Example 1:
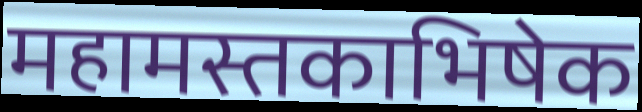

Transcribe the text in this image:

महामस्तकाभिषेक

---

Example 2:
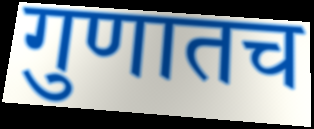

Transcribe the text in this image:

गुणातच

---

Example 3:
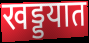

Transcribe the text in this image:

खड्डयात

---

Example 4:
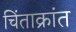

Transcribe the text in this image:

चिंताक्रांत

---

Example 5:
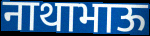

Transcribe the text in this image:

नाथाभाऊ